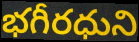
భగీరధుని